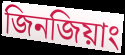
জিনজিয়াং